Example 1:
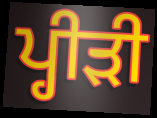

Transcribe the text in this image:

ਪ੍ਹੀੜੀ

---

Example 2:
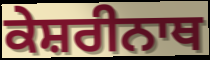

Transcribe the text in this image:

ਕੇਸ਼ਰੀਨਾਥ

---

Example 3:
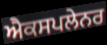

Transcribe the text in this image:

ਐਕਸਪਲੇਨਰ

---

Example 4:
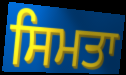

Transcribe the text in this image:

ਸਿਮਤਾ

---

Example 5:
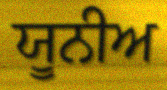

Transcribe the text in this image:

ਯੂਨੀਅ